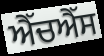
ਐੱਚਐੱਸ